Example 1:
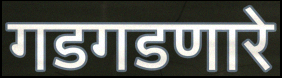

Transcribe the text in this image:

गडगडणारे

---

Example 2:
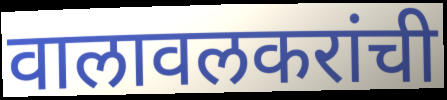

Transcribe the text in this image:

वालावलकरांची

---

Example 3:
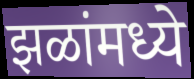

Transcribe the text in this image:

झळांमध्ये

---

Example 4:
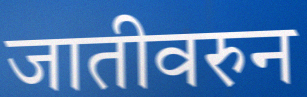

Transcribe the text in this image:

जातीवरुन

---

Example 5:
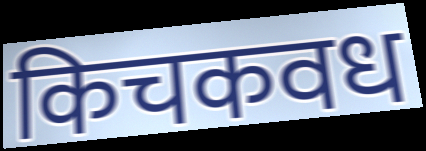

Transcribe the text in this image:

किचकवध